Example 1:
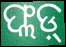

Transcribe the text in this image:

ଫ୍ଲଡ଼୍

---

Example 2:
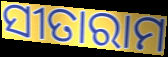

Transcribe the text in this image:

ସୀତାରାମ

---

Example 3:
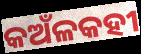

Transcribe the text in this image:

କଅଁଳକହୀ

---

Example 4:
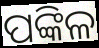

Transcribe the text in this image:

ପଙ୍କିଳ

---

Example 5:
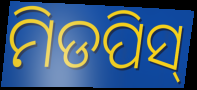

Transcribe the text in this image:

ମିଡପିସ୍